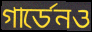
গার্ডেনও